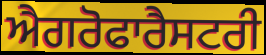
ਐਗਰੋਫਾਰੈਸਟਰੀ